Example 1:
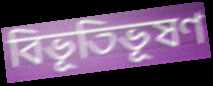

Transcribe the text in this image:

বিভূতিভূষণ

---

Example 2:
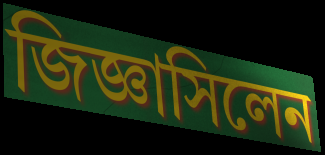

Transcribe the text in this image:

জিজ্ঞাসিলেন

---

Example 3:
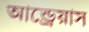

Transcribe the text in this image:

আন্ড্রেয়াস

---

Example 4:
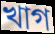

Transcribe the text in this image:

খাগ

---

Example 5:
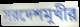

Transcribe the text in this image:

সরদেশমুখীর